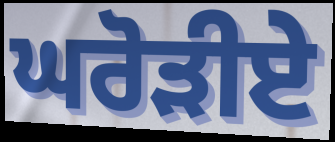
ਘਰੋੜੀਏ